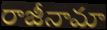
రాజీనామా